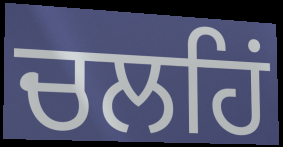
ਚਲਹਿਂ